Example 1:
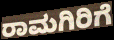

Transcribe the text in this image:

ರಾಮಗಿರಿಗೆ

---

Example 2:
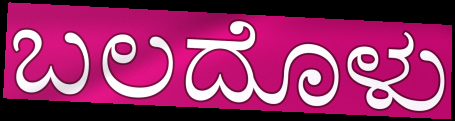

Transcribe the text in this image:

ಬಲದೊಳು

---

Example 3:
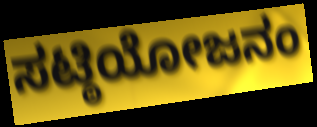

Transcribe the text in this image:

ಸಟ್ಠಿಯೋಜನಂ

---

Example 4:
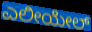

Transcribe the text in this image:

ಎಲೀಯೇಲ್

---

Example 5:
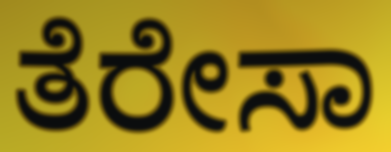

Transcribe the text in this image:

ತೆರೇಸಾ